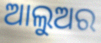
ଆଲୁଅର